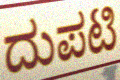
ದುಪಟಿ